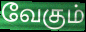
வேகும்